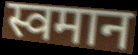
स्वमान